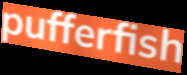
pufferfish